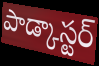
పాడ్కాస్టర్